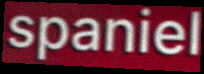
spaniel